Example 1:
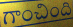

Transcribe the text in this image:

గాంచింది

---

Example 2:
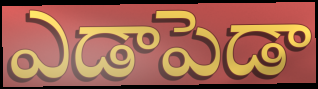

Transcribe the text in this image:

ఎడాపెడా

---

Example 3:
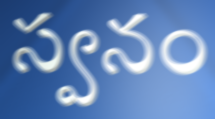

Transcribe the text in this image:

స్వనం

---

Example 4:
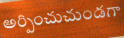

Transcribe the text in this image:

అర్పించుచుండగా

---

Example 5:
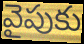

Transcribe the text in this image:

వైపుకు